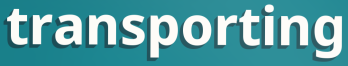
transporting